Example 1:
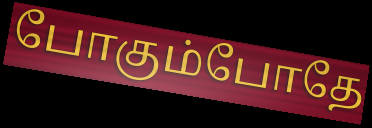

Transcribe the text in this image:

போகும்போதே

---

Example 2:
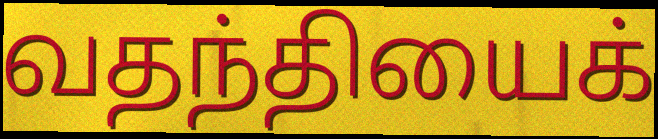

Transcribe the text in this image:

வதந்தியைக்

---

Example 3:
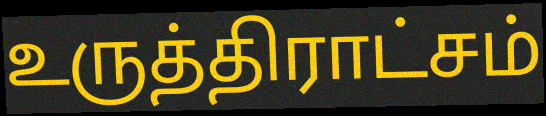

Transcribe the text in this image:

உருத்திராட்சம்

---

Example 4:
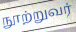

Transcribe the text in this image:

நூற்றுவர்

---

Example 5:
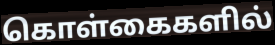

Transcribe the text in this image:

கொள்கைகளில்